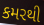
કમરથી